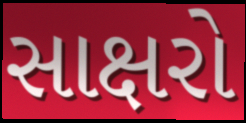
સાક્ષરો